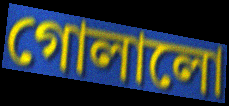
গোলালো